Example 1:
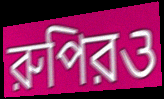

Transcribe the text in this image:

রুপিরও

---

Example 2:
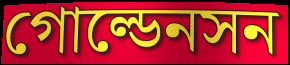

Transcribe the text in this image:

গোল্ডেনসন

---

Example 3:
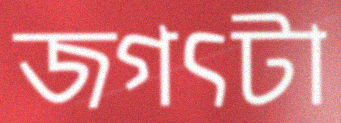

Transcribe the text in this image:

জগৎটা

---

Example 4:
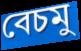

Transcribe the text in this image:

বেচমু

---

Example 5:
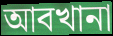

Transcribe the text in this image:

আবখানা